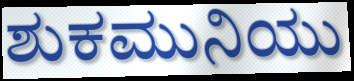
ಶುಕಮುನಿಯು